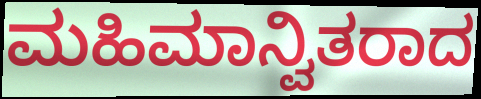
ಮಹಿಮಾನ್ವಿತರಾದ